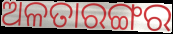
ଅଳତାରଙ୍ଗର